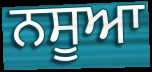
ਨਸੂਆ